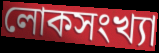
লোকসংখ্যা